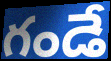
గండే